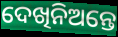
ଦେଖିନିଅନ୍ତେ